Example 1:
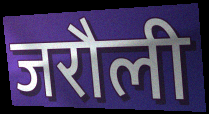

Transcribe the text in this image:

जरौली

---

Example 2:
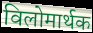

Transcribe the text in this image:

विलोमार्थक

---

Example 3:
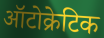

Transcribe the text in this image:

ऑटोक्रेटिक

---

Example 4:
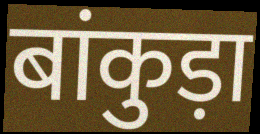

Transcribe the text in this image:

बांकुड़ा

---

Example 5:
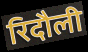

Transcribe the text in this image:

रिदौली